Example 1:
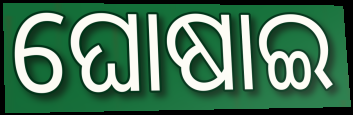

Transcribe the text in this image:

ଘୋଷାଇ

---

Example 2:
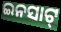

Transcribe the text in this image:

ଇନସାଟ୍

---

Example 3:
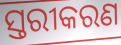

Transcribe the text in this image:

ସ୍ତରୀକରଣ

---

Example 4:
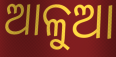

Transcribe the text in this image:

ଆଳୁଆ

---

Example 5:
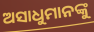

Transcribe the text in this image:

ଅସାଧୁମାନଙ୍କୁ